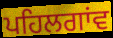
ਪਹਿਲਗਾਂਵ